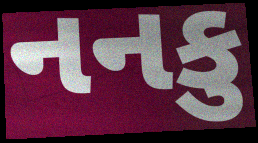
નનકુ